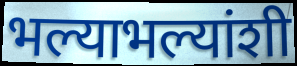
भल्याभल्यांशी